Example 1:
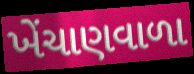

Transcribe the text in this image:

ખેંચાણવાળા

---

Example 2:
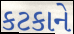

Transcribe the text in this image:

કટકાને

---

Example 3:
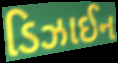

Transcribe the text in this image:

ડિઝાઈન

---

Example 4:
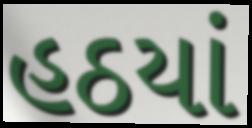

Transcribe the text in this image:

હઠયાં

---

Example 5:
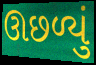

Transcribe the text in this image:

ઊછળ્યું